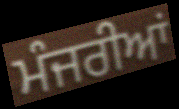
ਮੰਜਰੀਆਂ